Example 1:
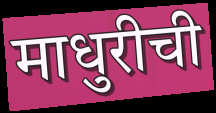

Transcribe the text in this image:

माधुरीची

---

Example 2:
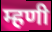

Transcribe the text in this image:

म्हणी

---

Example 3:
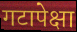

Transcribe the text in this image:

गटापेक्षा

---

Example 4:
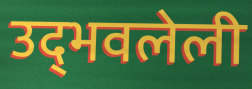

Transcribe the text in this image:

उद्‌भवलेली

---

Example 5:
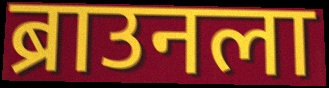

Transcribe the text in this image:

ब्राउनला